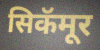
सिकॅमूर